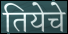
तियेचे